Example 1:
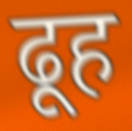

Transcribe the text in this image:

ढूह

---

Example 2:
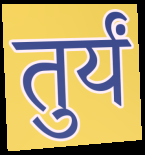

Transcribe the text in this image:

तुर्यं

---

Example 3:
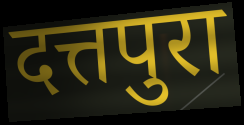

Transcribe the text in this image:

दत्तपुरा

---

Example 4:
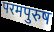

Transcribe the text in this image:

परमपुरुष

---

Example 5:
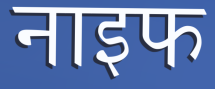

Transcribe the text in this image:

नाइफ